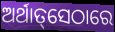
ଅର୍ଥାତ୍‌ସେଠାରେ